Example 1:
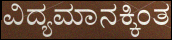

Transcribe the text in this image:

ವಿದ್ಯಮಾನಕ್ಕಿಂತ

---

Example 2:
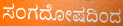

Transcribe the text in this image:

ಸಂಗದೋಷದಿಂದ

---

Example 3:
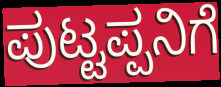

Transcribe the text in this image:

ಪುಟ್ಟಪ್ಪನಿಗೆ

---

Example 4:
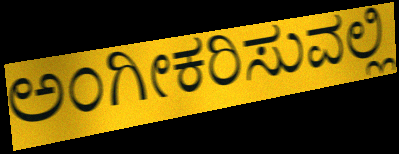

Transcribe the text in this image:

ಅಂಗೀಕರಿಸುವಲ್ಲಿ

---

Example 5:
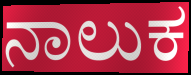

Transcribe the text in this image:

ನಾಲುಕ